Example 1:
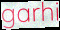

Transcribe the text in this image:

garhi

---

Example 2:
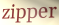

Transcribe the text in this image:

zipper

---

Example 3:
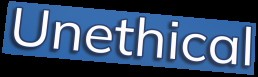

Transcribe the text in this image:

Unethical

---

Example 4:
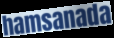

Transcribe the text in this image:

hamsanada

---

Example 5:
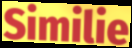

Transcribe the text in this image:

Similie